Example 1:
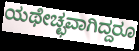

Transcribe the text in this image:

ಯಥೇಚ್ಛವಾಗಿದ್ದರೂ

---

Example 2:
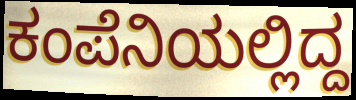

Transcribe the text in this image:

ಕಂಪೆನಿಯಲ್ಲಿದ್ದ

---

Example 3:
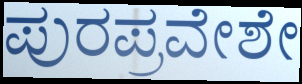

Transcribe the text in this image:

ಪುರಪ್ರವೇಶೇ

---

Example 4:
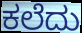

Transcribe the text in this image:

ಕಲೆದು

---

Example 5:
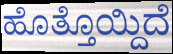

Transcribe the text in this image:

ಹೊತ್ತೊಯ್ದಿದೆ